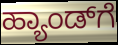
ಹ್ಯಾಂಡ್‌ಗೆ